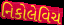
નિકોલેવિચ